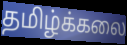
தமிழ்க்கலை